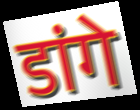
डांगे